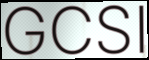
GCSI